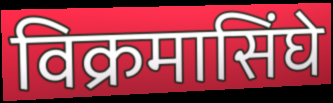
विक्रमासिंघे